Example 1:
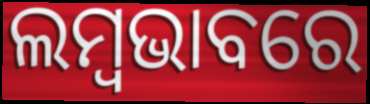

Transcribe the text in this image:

ଲମ୍ବଭାବରେ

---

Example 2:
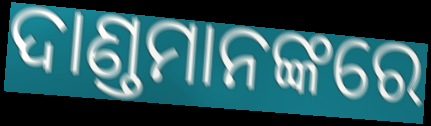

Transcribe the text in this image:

ଦାଣ୍ଡମାନଙ୍କରେ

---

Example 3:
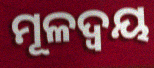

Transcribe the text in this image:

ମୂଳଦ୍ୱୟ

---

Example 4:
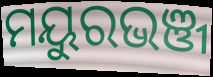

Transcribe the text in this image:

ମୟୁରଭଞ୍ଜ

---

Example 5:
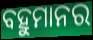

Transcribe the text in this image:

ବହୁମାନର